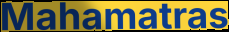
Mahamatras